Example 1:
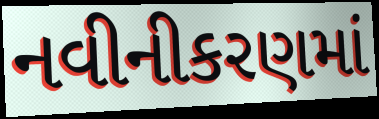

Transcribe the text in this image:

નવીનીકરણમાં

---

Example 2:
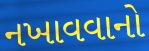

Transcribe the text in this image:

નખાવવાનો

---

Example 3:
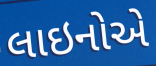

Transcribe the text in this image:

લાઇનોએ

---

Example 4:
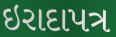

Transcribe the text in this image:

ઇરાદાપત્ર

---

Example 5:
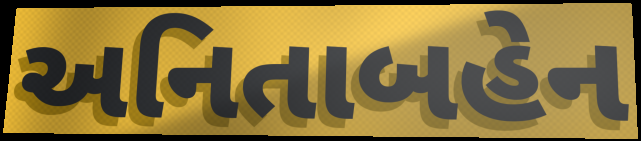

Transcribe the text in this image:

અનિતાબહેન